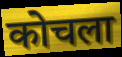
कोचला